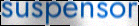
suspensor